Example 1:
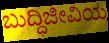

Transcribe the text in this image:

ಬುದ್ಧಿಜೀವಿಯ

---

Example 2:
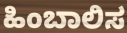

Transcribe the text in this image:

ಹಿಂಬಾಲಿಸ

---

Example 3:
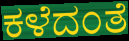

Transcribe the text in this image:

ಕಳೆದಂತೆ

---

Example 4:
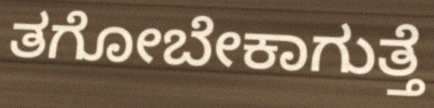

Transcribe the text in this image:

ತಗೋಬೇಕಾಗುತ್ತೆ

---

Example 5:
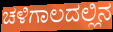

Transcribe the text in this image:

ಚಳಿಗಾಲದಲ್ಲಿನ